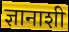
ज्ञानाशी